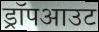
ड्रॉपआउट